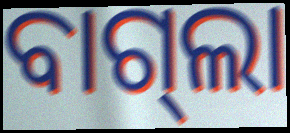
ବାଗ୍‍ଲା